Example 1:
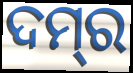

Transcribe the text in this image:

ଦମ୍‌ର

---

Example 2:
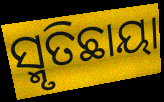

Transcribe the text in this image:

ସ୍ମୃତିଛାୟା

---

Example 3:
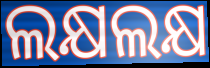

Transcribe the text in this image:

ଲକ୍ଷଲକ୍ଷ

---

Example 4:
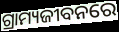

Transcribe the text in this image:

ଗ୍ରାମ୍ୟଜୀବନରେ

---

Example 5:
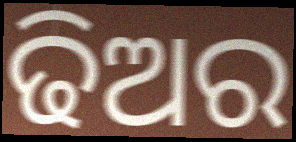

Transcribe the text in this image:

ଢିଅର